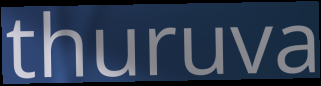
thuruva